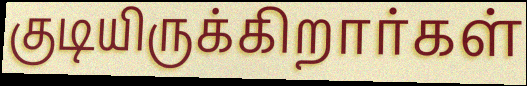
குடியிருக்கிறார்கள்